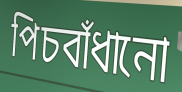
পিচবাঁধানো